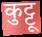
कुट्टू